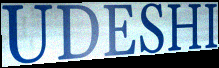
UDESHI